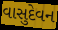
વાસુદેવન